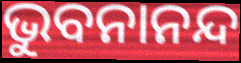
ଭୁବନାନନ୍ଦ